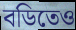
বডিতেও